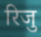
रिजु